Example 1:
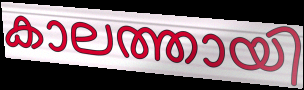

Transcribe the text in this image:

കാലത്തായി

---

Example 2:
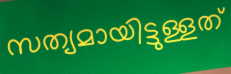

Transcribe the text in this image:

സത്യമായിട്ടുള്ളത്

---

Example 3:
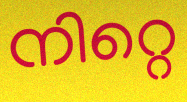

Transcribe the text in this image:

നിറ്റെ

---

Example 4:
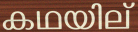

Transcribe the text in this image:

കഥയില്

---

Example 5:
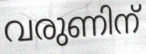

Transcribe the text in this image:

വരുണിന്